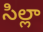
సిల్లా